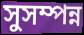
সুসম্পন্ন